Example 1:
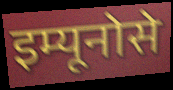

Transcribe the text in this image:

इम्यूनोसे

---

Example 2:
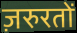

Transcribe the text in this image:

ज़रुरतों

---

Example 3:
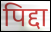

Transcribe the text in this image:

पिद्दा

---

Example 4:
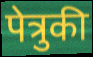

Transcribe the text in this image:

पेत्रुकी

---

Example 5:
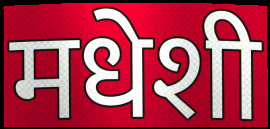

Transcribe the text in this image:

मधेशी